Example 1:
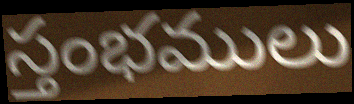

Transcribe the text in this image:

స్తంభములు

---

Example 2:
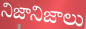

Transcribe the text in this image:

నిజానిజాలు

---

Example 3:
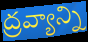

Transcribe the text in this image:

ద్రవ్యాన్ని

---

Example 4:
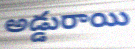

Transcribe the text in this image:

అడ్డురాయి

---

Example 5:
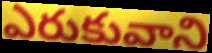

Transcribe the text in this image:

ఎరుకువాని